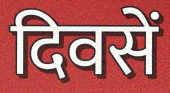
दिवसें